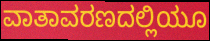
ವಾತಾವರಣದಲ್ಲಿಯೂ